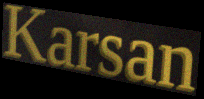
Karsan